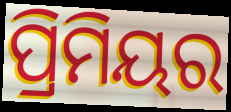
ପ୍ରିମିୟର